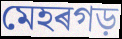
মেহৰগড়